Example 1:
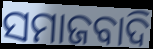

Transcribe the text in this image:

ସମାଜବାଦି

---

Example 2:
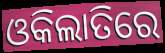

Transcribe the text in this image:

ଓକିଲାତିରେ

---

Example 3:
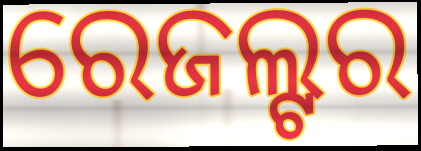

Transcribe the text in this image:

ରେଜଲ୍ଟର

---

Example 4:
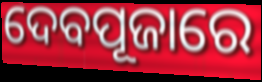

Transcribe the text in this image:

ଦେବପୂଜାରେ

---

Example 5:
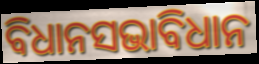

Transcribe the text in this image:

ବିଧାନସଭାବିଧାନ